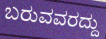
ಬರುವವರದ್ದು